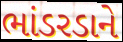
ભાંડરડાને